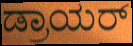
ಡ್ರಾಯರ್